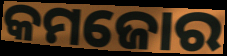
କମଜୋର